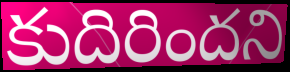
కుదిరిందని